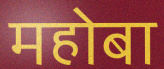
महोबा